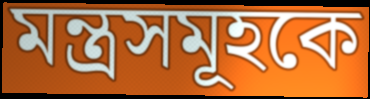
মন্ত্রসমূহকে